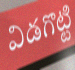
విడగొట్టి